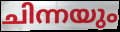
ചിന്നയും